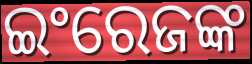
ଇଂରେଜଙ୍କ